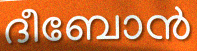
ദീബോൻ